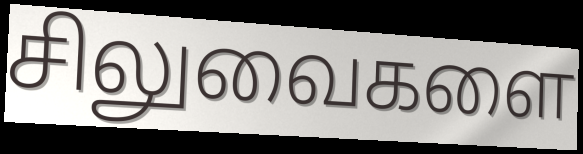
சிலுவைகளை